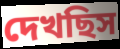
দেখছিস